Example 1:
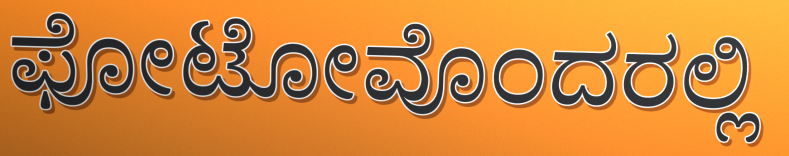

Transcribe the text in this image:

ಫೋಟೋವೊಂದರಲ್ಲಿ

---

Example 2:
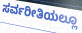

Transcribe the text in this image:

ಸರ್ವರೀತಿಯಲ್ಲೂ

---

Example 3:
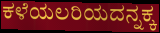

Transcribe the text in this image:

ಕಳೆಯಲರಿಯದನ್ನಕ್ಕ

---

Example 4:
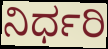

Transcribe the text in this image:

ನಿರ್ಧರಿ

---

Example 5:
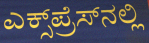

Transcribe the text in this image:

ಎಕ್ಸ್‌ಪ್ರೆಸ್‌ನಲ್ಲಿ